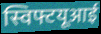
स्विफ्टयूआई